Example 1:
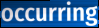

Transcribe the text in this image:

occurring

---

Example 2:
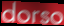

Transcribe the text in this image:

dorso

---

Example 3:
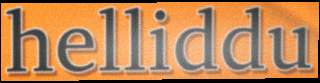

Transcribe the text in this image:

helliddu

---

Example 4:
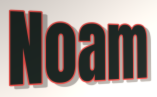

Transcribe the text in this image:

Noam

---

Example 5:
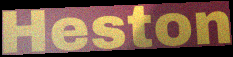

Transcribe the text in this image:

Heston